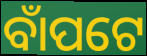
ବାଁପଟେ